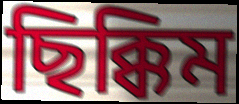
ছিক্কিম